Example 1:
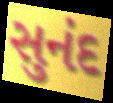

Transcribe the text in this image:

સુનંદ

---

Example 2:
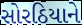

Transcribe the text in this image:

સોરઠિયાને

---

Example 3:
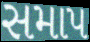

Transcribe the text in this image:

સમાપ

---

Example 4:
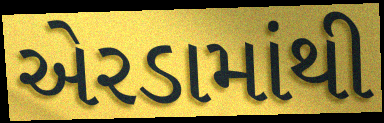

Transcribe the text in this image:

એરડામાંથી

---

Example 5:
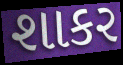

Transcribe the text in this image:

શાકર